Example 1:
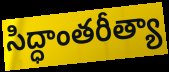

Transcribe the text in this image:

సిద్ధాంతరీత్యా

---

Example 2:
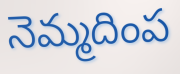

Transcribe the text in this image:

నెమ్మదింప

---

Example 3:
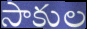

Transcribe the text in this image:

సాకుల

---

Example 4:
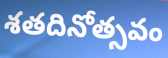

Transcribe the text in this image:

శతదినోత్సవం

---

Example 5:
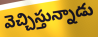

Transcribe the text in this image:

వెచ్చిస్తున్నాడు